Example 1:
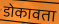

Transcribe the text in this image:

डोकावता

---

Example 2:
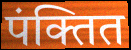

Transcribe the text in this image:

पंक्तित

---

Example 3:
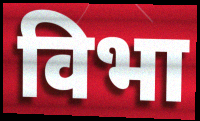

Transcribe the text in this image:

विभा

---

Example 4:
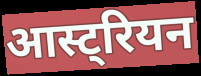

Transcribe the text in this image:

आस्ट्रियन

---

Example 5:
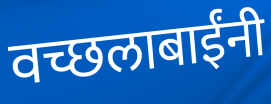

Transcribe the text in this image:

वच्छलाबाईंनी